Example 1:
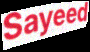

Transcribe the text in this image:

Sayeed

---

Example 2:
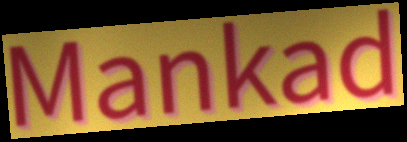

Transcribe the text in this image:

Mankad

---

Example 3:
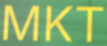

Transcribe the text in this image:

MKT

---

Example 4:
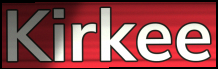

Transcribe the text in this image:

Kirkee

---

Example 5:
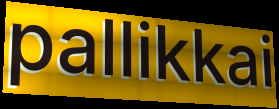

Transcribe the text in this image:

pallikkai